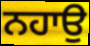
ਨਹਾਉ